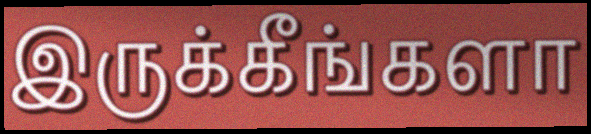
இருக்கீங்களா